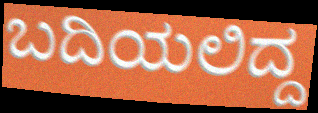
ಬದಿಯಲಿದ್ದ